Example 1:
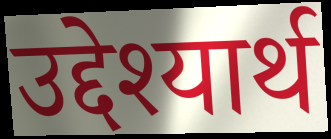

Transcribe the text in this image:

उद्देश्यार्थ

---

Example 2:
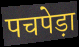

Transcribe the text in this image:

पचपेड़ा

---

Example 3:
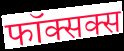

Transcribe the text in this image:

फॉक्सक्स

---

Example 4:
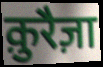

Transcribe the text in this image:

क़ुरैज़ा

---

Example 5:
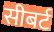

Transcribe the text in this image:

सीबर्ट